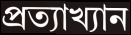
প্রত্যাখ্যান